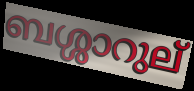
ബശ്ശാറുല്